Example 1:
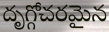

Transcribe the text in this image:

దృగ్గోచరమైన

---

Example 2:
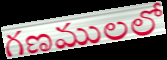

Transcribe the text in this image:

గణములలో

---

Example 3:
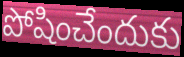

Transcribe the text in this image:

పోషించేందుకు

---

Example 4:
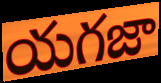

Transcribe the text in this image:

యగజా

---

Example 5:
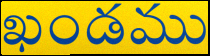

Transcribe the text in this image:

ఖండము